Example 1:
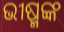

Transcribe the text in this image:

ଭୀଷ୍ମଙ୍କ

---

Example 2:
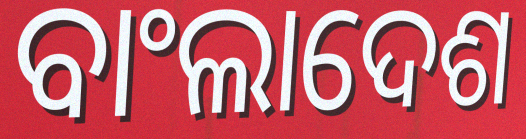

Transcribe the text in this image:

ବାଂଲାଦେଶ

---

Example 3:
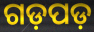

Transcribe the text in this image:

ଗଡ଼ପଡ଼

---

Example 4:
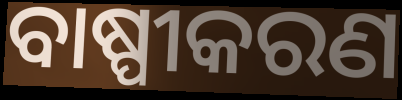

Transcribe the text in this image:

ବାଷ୍ପୀକରଣ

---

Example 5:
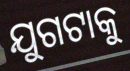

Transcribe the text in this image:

ଯୁଗଟାକୁ